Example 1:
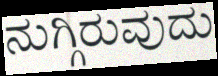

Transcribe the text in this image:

ನುಗ್ಗಿರುವುದು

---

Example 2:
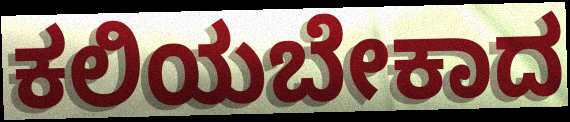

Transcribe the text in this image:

ಕಲಿಯಬೇಕಾದ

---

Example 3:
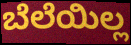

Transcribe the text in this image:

ಬೆಲೆಯಿಲ್ಲ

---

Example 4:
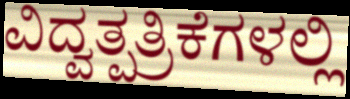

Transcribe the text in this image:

ವಿದ್ವತ್ಪತ್ರಿಕೆಗಳಲ್ಲಿ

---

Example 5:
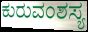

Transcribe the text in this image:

ಕುರುವಂಶಸ್ಯ